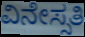
ವಿನೇಸ್ಸತಿ